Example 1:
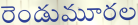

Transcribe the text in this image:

రెండుమూరల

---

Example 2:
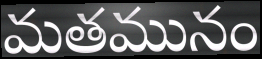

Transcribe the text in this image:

మతమునం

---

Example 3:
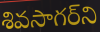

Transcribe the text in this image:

శివసాగర్‌ని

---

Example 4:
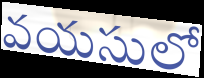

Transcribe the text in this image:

వయసులో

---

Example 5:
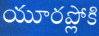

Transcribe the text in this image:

యూరప్లోకి